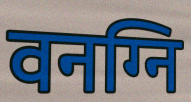
वनग्नि